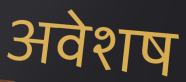
अवेशष